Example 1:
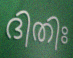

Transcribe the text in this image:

ദിതിഃ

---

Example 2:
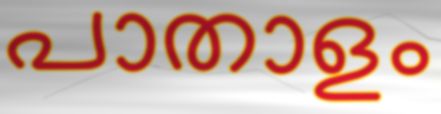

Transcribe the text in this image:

പാതാളം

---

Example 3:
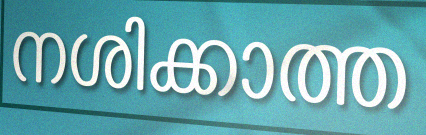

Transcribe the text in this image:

നശിക്കാത്ത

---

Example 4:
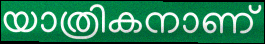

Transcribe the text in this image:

യാത്രികനാണ്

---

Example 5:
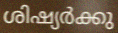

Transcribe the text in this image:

ശിഷ്യർക്കു